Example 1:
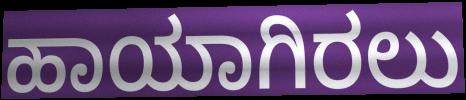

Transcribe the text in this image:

ಹಾಯಾಗಿರಲು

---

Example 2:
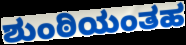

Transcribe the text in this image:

ಶುಂಠಿಯಂತಹ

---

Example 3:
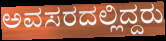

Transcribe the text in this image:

ಅವಸರದಲ್ಲಿದ್ದರು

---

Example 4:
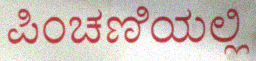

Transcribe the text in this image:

ಪಿಂಚಣಿಯಲ್ಲಿ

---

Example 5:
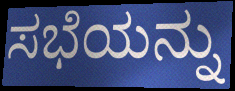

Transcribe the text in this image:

ಸಭೆಯನ್ನು